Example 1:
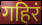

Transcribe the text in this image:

गहिरं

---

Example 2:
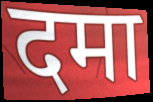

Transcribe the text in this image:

दमा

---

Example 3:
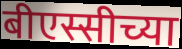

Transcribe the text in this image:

बीएस्सीच्या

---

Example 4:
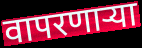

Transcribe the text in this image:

वापरणाऱ्या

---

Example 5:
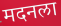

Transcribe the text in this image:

मदनला